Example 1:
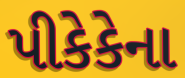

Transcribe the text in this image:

પીકેકેના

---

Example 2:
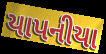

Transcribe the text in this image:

યાપનીયા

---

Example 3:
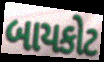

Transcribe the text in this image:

બાયકોટ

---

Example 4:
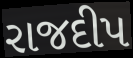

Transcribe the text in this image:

રાજદીપ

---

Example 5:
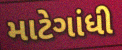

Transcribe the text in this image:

માટેગાંધી